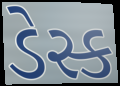
ડેસ્ક